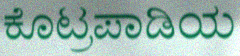
ಕೊಟ್ರಪಾಡಿಯ